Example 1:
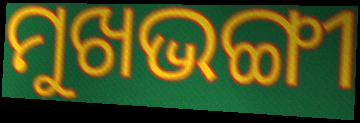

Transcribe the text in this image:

ମୁଖଭଙ୍ଗୀ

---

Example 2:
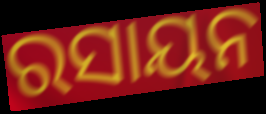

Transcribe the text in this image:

ରସାୟନ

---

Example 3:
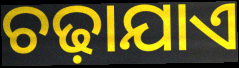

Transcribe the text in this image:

ଚଢ଼ାଯାଏ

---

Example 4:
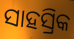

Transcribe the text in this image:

ସାହସ୍ରିକ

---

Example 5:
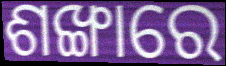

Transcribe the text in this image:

ଶଙ୍ଖାରେ